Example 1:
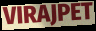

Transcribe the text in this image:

VIRAJPET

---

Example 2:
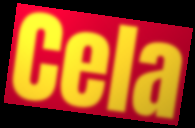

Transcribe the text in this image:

Cela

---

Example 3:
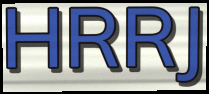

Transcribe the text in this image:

HRRJ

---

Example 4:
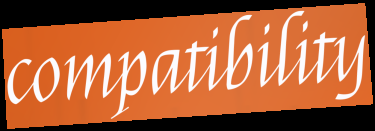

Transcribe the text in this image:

compatibility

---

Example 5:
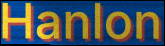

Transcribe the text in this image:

Hanlon